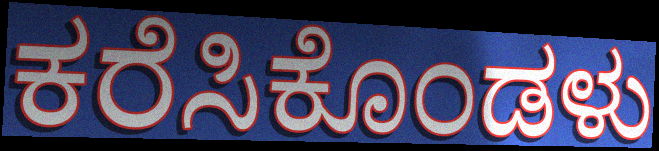
ಕರೆಸಿಕೊಂಡಳು